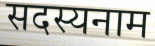
सदस्यनाम